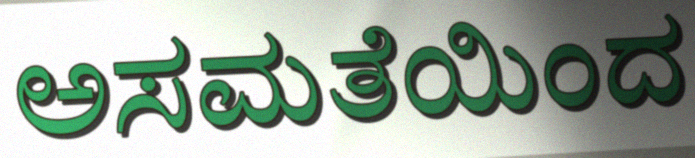
ಅಸಮತೆಯಿಂದ